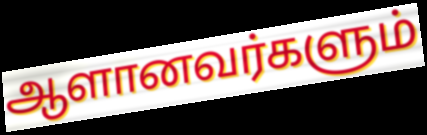
ஆளானவர்களும்